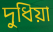
দুধিয়া